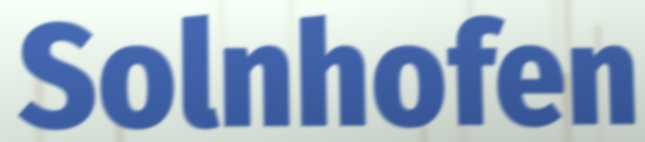
Solnhofen